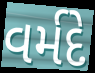
વર્મદે